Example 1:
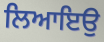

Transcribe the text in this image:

ਲਿਆਇਉ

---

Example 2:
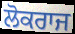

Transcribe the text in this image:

ਲੋਕਰਾਜ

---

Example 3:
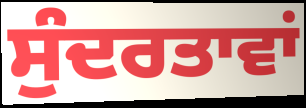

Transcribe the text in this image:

ਸੁੰਦਰਤਾਵਾਂ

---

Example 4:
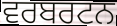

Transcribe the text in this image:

ਵਰਬਰਟਨ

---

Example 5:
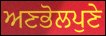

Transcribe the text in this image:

ਅਣਭੋਲਪੁਣੇ